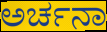
ಅರ್ಚನಾ